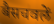
बैसचवलें